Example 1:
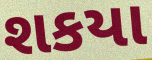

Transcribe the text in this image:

શકયા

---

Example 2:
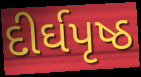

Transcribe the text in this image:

દીર્ઘપૃષ્ઠ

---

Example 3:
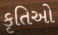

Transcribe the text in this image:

કૃતિઓ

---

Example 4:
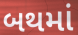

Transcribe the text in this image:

બથમાં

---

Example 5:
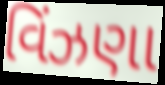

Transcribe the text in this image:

વિંઝણા